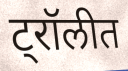
ट्रॉलीत